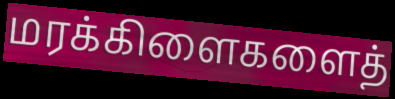
மரக்கிளைகளைத்